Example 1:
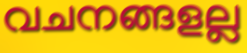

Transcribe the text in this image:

വചനങ്ങളല്ല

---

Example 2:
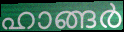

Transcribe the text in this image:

ഹാങ്ങർ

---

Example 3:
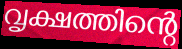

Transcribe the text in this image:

വൃക്ഷത്തിന്റെ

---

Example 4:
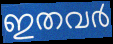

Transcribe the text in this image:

ഇതവർ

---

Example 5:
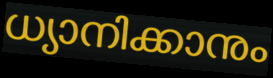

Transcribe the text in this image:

ധ്യാനിക്കാനും